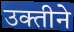
उक्तीने